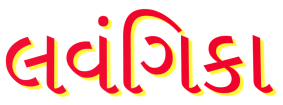
લવંગિકા